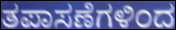
ತಪಾಸಣೆಗಳಿಂದ